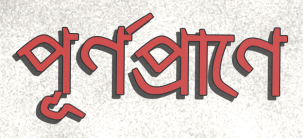
পূর্ণপ্রাণে